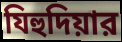
যিহুদিয়ার